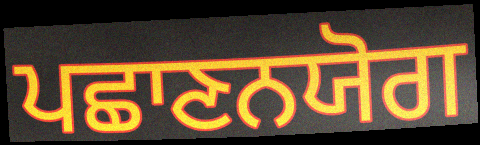
ਪਛਾਣਨਯੋਗ